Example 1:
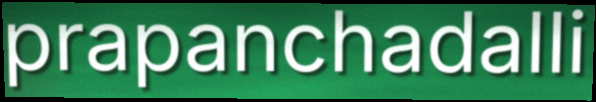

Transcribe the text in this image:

prapanchadalli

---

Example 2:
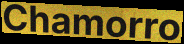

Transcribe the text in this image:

Chamorro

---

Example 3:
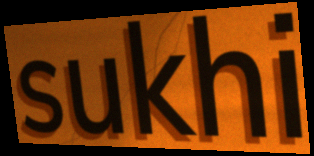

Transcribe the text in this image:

sukhi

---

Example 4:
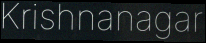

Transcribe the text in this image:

Krishnanagar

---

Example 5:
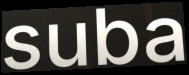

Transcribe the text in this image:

suba